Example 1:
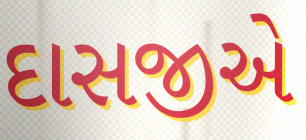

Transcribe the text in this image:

દાસજીએ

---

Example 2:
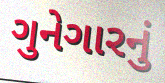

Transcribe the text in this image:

ગુનેગારનું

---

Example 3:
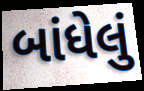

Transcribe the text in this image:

બાંધેલું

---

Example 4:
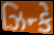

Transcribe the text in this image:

ઝિન્કે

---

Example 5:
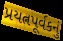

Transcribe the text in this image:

પ્રયત્નપૂર્વકનું